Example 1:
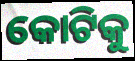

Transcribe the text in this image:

କୋଟିକୁ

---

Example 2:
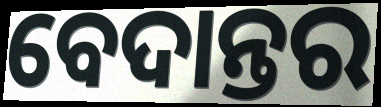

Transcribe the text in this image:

ବେଦାନ୍ତର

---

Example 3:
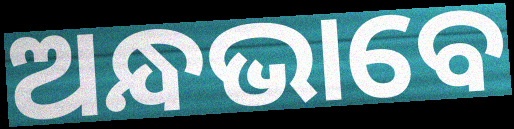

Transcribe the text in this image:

ଅନ୍ଧଭାବେ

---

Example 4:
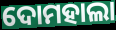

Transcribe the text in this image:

ଦୋମହାଲା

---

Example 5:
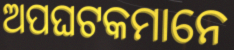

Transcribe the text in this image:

ଅପଘଟକମାନେ